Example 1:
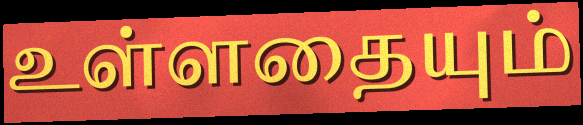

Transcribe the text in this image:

உள்ளதையும்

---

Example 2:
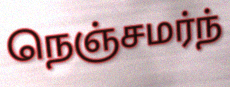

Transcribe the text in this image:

நெஞ்சமர்ந்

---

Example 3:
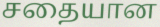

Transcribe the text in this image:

சதையான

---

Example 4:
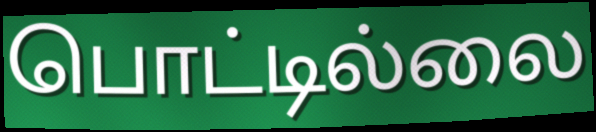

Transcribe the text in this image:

பொட்டில்லை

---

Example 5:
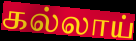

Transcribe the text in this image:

கல்லாய்